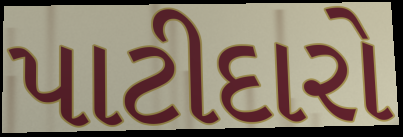
પાટીદારો